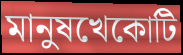
মানুষখেকোটি